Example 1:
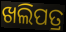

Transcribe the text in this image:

ଖଲିପତ୍ର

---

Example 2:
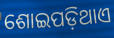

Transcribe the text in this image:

ଶୋଇପଡ଼ିଥାଏ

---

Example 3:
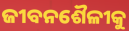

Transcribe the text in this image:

ଜୀବନଶୈଳୀକୁ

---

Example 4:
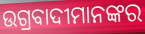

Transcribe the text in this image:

ଉଗ୍ରବାଦୀମାନଙ୍କର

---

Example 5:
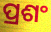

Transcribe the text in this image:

ପ୍ରଶଂ